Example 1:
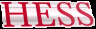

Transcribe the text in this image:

HESS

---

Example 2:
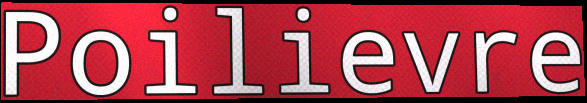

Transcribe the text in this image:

Poilievre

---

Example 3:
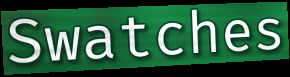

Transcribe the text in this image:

Swatches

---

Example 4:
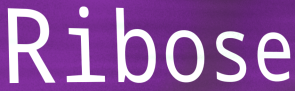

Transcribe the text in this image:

Ribose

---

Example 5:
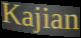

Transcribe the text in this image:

Kajian